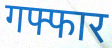
गफ्फार